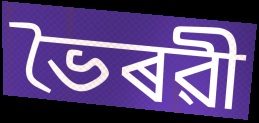
ভৈৰৱী